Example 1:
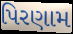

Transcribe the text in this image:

પિરણામ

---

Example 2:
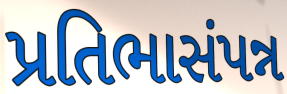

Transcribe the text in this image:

પ્રતિભાસંપન્ન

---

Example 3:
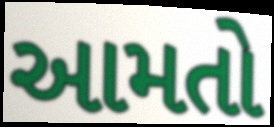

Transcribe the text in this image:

આમતો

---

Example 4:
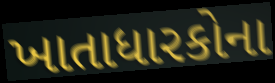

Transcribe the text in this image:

ખાતાધારકોના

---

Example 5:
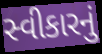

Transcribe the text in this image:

સ્વીકારનું